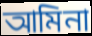
আমিনা